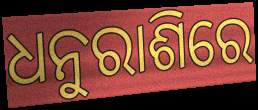
ଧନୁରାଶିରେ